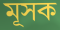
মূসক